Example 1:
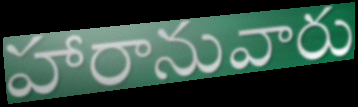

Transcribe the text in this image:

హారానువారు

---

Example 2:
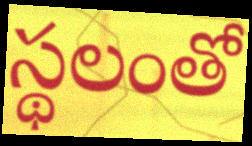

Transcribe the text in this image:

స్థలంతో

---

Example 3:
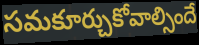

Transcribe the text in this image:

సమకూర్చుకోవాల్సిందే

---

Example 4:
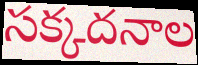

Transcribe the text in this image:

సక్కదనాల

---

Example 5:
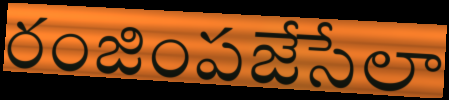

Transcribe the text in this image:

రంజింపజేసేలా